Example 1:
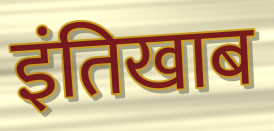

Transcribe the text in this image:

इंतिखाब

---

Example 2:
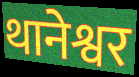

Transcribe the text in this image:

थानेश्वर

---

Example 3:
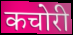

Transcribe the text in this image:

कचोरी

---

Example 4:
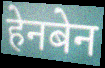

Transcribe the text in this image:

हेनबेन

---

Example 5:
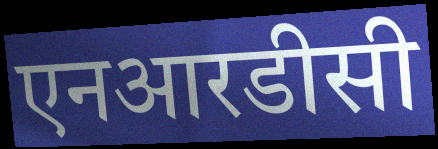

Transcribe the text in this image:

एनआरडीसी